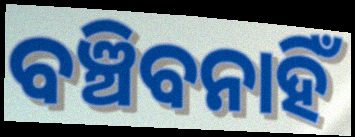
ବଞ୍ଚିବନାହିଁ